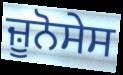
ਜ਼ੂਨੋਸੇਸ